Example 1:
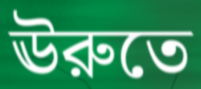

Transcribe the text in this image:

ঊরুতে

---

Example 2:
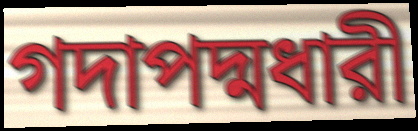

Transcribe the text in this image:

গদাপদ্মধারী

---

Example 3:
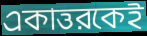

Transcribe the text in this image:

একাত্তরকেই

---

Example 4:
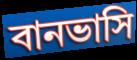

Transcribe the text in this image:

বানভাসি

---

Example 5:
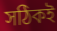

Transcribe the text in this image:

সঠিকই